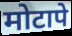
मोटापे